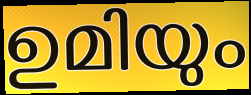
ഉമിയും